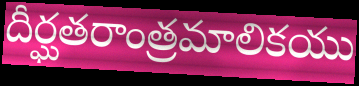
దీర్ఘతరాంత్రమాలికయు